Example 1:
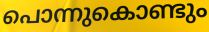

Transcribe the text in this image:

പൊന്നുകൊണ്ടും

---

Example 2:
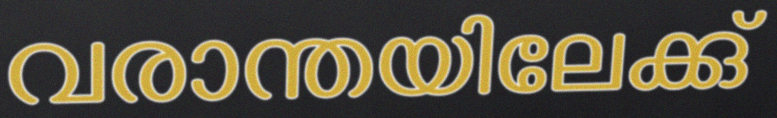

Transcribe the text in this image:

വരാന്തയിലേക്കു്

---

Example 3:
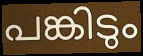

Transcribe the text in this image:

പങ്കിടും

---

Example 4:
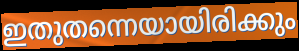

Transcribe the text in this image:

ഇതുതന്നെയായിരിക്കും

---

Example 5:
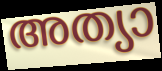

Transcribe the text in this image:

അത്യാ